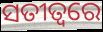
ସତୀତ୍ୱରେ